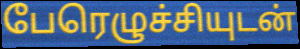
பேரெழுச்சியுடன்